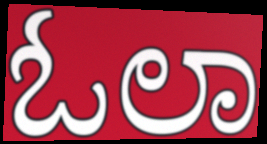
ಓಲಾ